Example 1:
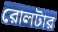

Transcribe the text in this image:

রোলটার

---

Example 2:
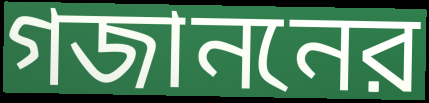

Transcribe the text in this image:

গজাননের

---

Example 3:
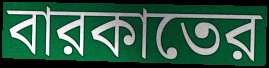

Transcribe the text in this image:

বারকাতের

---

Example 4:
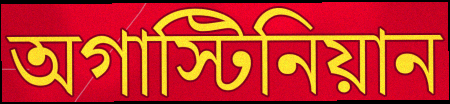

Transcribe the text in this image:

অগাস্টিনিয়ান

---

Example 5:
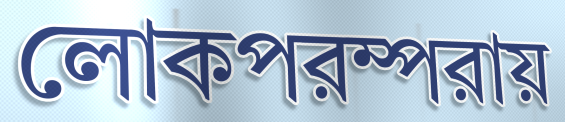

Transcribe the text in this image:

লোকপরম্পরায়